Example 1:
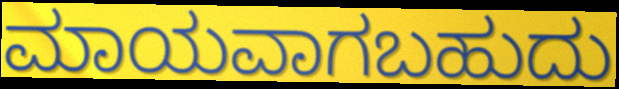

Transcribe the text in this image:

ಮಾಯವಾಗಬಹುದು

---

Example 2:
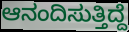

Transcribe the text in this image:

ಆನಂದಿಸುತ್ತಿದ್ದೆ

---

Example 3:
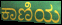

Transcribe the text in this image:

ಕಾಣಿಯ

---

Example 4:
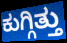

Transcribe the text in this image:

ಕುಗ್ಗಿತ್ತು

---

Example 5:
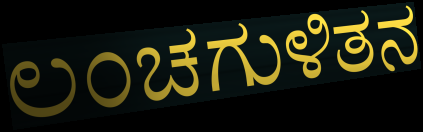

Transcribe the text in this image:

ಲಂಚಗುಳಿತನ